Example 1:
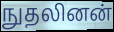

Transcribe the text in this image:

நுதலினன்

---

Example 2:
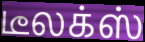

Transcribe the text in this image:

டீலக்ஸ்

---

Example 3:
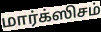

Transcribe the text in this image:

மார்க்ஸிசம்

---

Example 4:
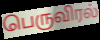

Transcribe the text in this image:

பெருவிரல்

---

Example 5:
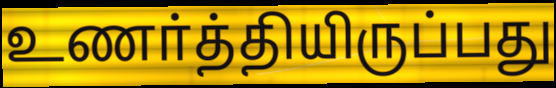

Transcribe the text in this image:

உணர்த்தியிருப்பது